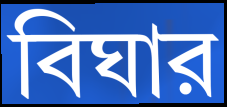
বিঘার